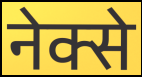
नेक्से